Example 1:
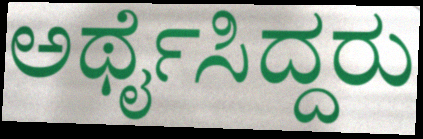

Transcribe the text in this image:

ಅರ್ಥೈಸಿದ್ದರು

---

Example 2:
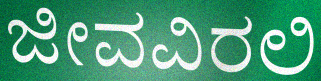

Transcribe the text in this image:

ಜೀವವಿರಲಿ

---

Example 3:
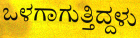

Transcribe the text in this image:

ಒಳಗಾಗುತ್ತಿದ್ದಳು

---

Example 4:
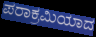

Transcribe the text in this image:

ಪರಾಕ್ರಮಿಯಾದ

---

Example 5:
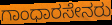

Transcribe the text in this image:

ಗಾಂಧಾರಸೇನರು